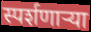
स्पर्शणाऱ्या